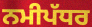
ਨਮੀਪੱਧਰ